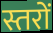
स्तरों